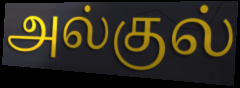
அல்குல்